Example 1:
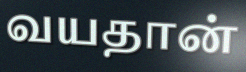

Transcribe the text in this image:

வயதான்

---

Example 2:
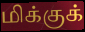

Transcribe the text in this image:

மிக்குக்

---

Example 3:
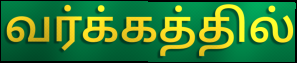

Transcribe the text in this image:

வர்க்கத்தில்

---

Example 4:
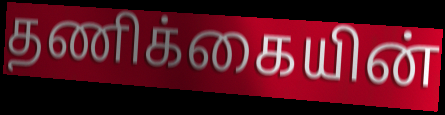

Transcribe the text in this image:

தணிக்கையின்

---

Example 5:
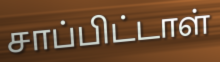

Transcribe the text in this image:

சாப்பிட்டாள்